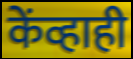
केंव्हाही